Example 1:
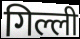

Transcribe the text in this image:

गिल्ली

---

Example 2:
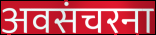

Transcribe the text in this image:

अवसंचरना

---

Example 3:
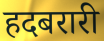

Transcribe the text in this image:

हदबरारी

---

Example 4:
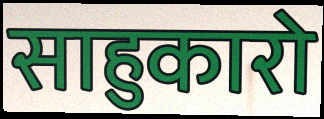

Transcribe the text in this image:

साहुकारो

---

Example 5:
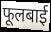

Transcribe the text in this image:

फूलबाई